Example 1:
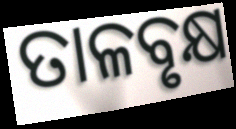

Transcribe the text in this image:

ତାଳବୃକ୍ଷ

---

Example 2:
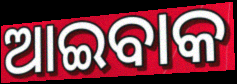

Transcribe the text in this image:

ଆଇବାକ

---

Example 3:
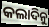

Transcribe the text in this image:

କଲାଦିନୁ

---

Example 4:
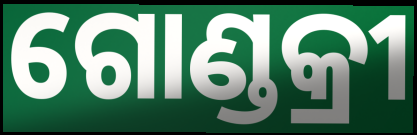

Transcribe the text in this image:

ଗୋଣ୍ଡକ୍ରୀ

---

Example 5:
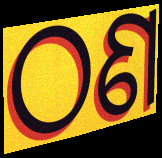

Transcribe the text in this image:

ଠଣ